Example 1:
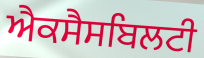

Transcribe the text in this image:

ਐਕਸੈਸਬਿਲਟੀ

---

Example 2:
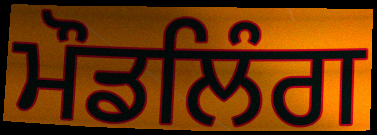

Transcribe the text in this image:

ਮੌਡਲਿੰਗ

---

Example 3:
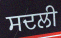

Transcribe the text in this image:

ਸਦਲੀ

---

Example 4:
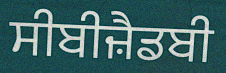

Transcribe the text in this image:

ਸੀਬੀਜ਼ੈਡਬੀ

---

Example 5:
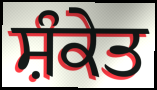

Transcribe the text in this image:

ਸ਼ੰਕੇਤ